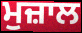
ਮੁਜ਼ਾਲ